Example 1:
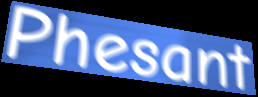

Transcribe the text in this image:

Phesant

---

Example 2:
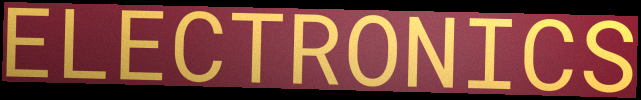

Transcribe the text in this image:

ELECTRONICS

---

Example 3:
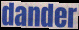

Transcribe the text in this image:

dander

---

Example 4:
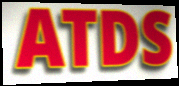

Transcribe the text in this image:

ATDS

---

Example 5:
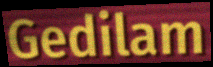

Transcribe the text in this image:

Gedilam